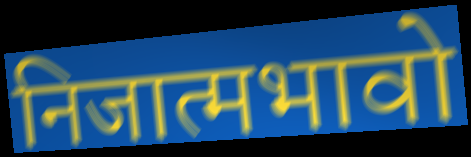
निजात्मभावो